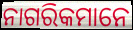
ନାଗରିକମାନେ